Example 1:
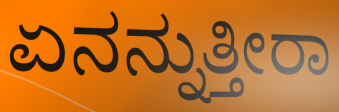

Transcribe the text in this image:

ಏನನ್ನುತ್ತೀರಾ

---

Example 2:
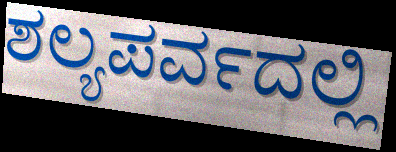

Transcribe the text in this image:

ಶಲ್ಯಪರ್ವದಲ್ಲಿ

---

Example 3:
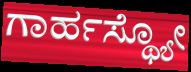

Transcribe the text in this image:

ಗಾರ್ಹಸ್ಥ್ಯೋ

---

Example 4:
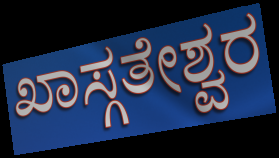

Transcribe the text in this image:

ಖಾಸ್ಗತೇಶ್ವರ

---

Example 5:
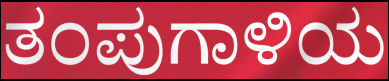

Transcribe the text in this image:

ತಂಪುಗಾಳಿಯ